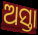
ଅସ୍ତା